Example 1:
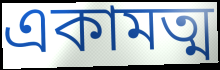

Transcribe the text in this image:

একামত্ম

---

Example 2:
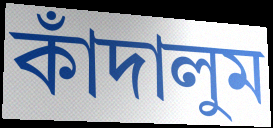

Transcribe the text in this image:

কাঁদালুম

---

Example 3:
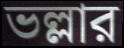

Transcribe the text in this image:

ভল্লার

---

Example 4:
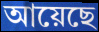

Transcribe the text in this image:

আয়েছে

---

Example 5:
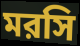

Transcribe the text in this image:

মরসি